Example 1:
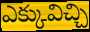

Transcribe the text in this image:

ఎక్కువిచ్చి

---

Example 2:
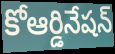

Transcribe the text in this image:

కోఆర్డినేషన్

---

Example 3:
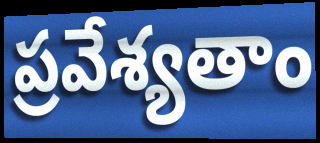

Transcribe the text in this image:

ప్రవేశ్యతాం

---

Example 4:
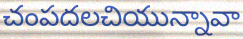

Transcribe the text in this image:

చంపదలచియున్నావా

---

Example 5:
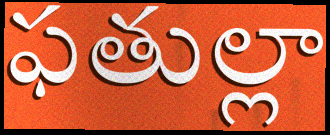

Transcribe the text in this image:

ఫతుల్లా